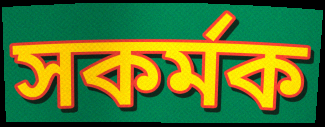
সকর্মক